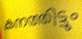
കനത്തിട്ടും